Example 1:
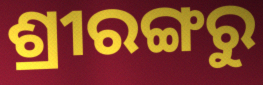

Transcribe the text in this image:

ଶ୍ରୀରଙ୍ଗରୁ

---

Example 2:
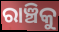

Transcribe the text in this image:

ରାଞ୍ଚିକୁ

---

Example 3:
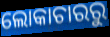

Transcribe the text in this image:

ଲୋକାଚାରରୁ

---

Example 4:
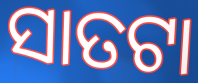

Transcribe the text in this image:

ସାତଟା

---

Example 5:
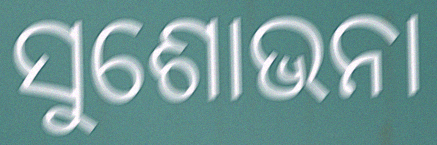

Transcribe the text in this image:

ସୁଶୋଭନା